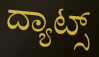
ದ್ಯಾಟ್ಸ್